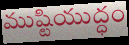
ముష్టియుద్ధం